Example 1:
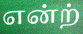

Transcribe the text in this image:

என்ற்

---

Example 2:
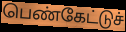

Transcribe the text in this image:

பெண்கேட்டுச்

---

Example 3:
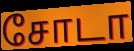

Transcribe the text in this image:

சோடா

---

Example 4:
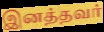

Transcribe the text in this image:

இனத்தவர்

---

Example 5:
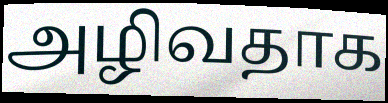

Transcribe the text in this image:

அழிவதாக